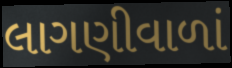
લાગણીવાળાં